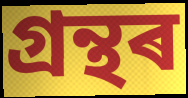
গ্ৰন্থৰ